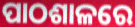
ପାଠଶାଳରେ